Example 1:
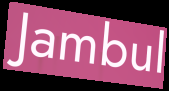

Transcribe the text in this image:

Jambul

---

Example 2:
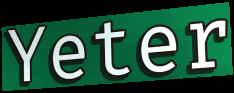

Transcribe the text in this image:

Yeter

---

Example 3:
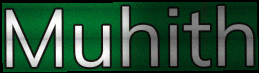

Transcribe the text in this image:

Muhith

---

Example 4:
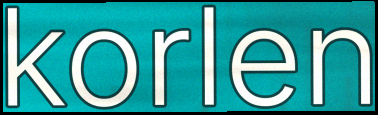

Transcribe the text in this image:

korlen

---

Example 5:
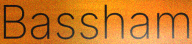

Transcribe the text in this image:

Bassham